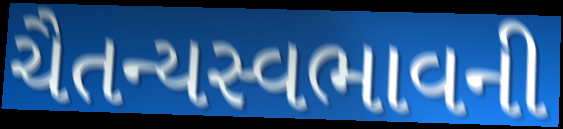
ચૈતન્યસ્વભાવની